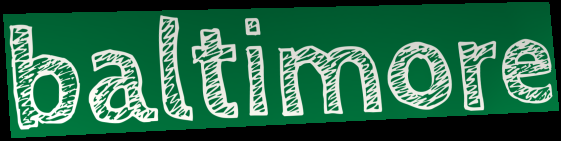
baltimore